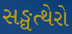
સઙ્ઘત્થેરો